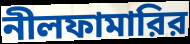
নীলফামারির